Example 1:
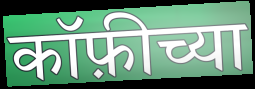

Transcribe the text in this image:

कॉफ़ीच्या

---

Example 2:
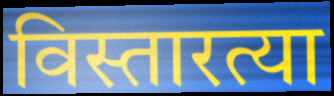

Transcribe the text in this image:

विस्तारत्या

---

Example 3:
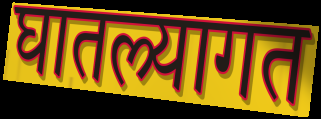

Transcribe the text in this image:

घातल्यागत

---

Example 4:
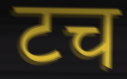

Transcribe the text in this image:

टच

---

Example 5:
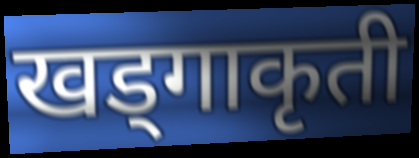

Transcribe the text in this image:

खड्गाकृती